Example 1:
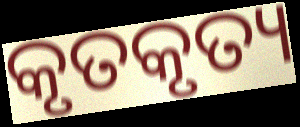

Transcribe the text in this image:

କୃତକୃତ୍ୟ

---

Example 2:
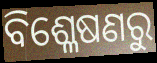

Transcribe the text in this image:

ବିଶ୍ଳେଷଣରୁ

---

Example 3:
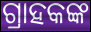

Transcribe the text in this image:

ଗ୍ରାହକଙ୍କ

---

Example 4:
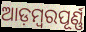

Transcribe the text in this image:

ଆଡ଼ମ୍ବରପୂର୍ଣ୍ଣ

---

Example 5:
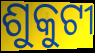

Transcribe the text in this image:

ଶୁକୁଟୀ